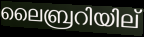
ലൈബ്രറിയില്